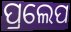
ପ୍ରଲେପ